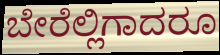
ಬೇರೆಲ್ಲಿಗಾದರೂ